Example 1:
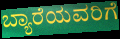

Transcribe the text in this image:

ಬ್ಯಾರೆಯವರಿಗೆ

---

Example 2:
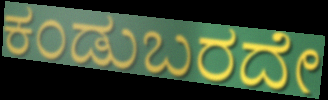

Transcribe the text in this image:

ಕಂಡುಬರದೇ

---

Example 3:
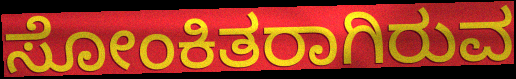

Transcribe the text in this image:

ಸೋಂಕಿತರಾಗಿರುವ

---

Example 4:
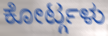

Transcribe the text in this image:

ಕೋರ್ಟ್ಗಳು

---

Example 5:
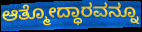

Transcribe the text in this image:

ಆತ್ಮೋದ್ಧಾರವನ್ನೂ